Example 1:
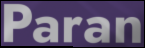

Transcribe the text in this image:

Paran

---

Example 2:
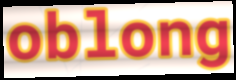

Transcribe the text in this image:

oblong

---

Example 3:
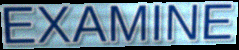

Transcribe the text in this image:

EXAMINE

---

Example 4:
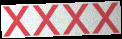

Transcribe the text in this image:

xxxx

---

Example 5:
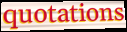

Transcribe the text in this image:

quotations